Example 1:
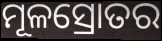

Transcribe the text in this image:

ମୂଳସ୍ରୋତର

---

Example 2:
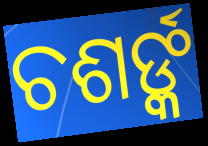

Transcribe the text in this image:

ଚଶର୍ଙ୍କ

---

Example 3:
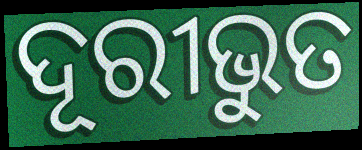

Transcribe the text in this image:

ଦୂରୀଭୁତ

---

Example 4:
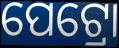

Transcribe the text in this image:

ପେଟ୍ରୋ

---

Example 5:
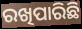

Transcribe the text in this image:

ରଖିପାରିଛି